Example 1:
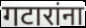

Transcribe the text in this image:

गटारांना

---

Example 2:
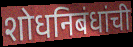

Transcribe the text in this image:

शोधनिबंधांची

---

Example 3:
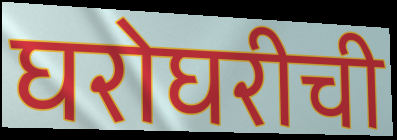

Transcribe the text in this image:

घरोघरीची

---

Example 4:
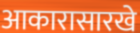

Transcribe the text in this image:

आकारासारखे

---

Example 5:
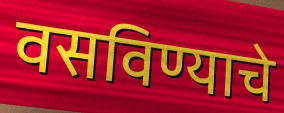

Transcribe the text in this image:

वसविण्याचे